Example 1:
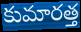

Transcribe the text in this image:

కుమారత్త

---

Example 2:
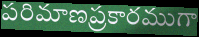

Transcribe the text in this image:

పరిమాణప్రకారముగా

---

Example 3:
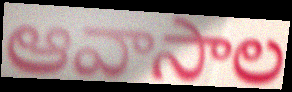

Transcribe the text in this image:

ఆవాసాల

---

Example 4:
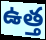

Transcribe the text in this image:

ఉత్త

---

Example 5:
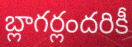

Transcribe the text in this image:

బ్లాగర్లందరికీ